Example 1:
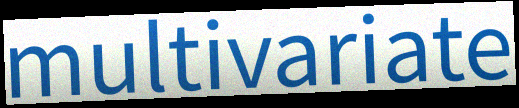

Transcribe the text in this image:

multivariate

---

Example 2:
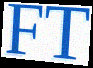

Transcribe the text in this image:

FT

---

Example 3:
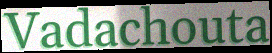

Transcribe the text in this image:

Vadachouta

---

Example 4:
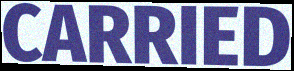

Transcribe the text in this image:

CARRIED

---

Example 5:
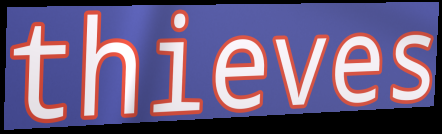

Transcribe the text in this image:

thieves